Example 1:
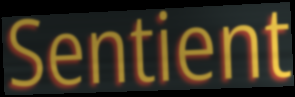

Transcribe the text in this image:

Sentient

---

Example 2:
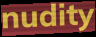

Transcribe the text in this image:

nudity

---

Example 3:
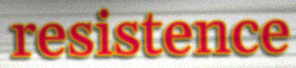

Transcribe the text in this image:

resistence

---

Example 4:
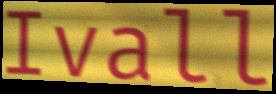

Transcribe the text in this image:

Ivall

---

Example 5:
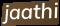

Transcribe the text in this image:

jaathi